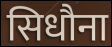
सिधौना